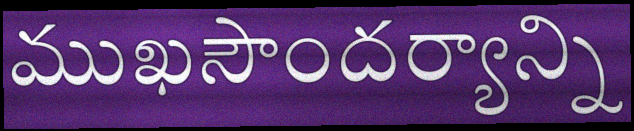
ముఖసౌందర్యాన్ని